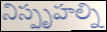
నిస్పృహల్ని